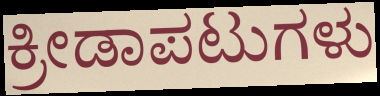
ಕ್ರೀಡಾಪಟುಗಳು